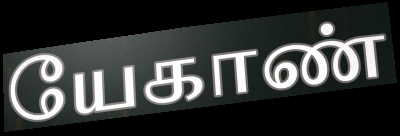
யேகாண்